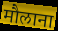
मौलाना